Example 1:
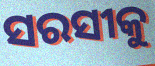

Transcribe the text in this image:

ସରସୀକୁ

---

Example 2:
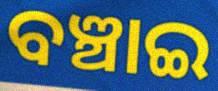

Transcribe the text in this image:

ବଞ୍ଚାଇ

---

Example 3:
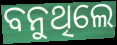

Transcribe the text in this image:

ବନୁଥିଲେ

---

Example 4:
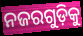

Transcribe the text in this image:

ନଜରଗୁଡ଼ିକୁ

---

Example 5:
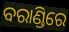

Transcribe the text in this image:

ବରାଣ୍ଡିରେ